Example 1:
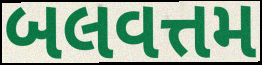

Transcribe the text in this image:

બલવત્તમ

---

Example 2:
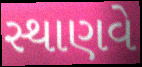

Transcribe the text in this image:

સ્થાણવે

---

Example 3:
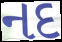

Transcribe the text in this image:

નદ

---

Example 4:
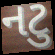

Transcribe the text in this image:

નટુ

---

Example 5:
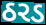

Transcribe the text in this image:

ઠરડ